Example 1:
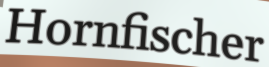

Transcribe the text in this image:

Hornfischer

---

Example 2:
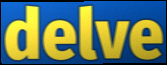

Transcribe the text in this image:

delve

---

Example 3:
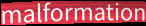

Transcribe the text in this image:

malformation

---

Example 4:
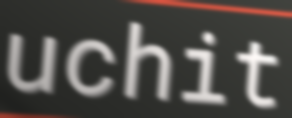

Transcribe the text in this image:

uchit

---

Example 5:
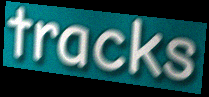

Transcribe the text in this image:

tracks